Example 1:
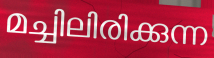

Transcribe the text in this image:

മച്ചിലിരിക്കുന്ന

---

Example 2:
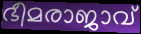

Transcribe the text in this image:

ഭീമരാജാവ്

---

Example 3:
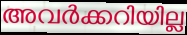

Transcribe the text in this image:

അവർക്കറിയില്ല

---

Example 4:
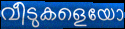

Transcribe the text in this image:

വീടുകളെയോ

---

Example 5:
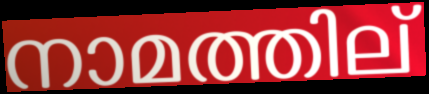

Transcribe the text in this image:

നാമത്തില്